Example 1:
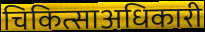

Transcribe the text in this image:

चिकित्साअधिकारी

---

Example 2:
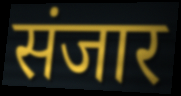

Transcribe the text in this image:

संजार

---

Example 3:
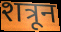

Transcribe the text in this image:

शत्रून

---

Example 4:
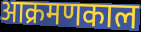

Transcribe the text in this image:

आक्रमणकाल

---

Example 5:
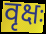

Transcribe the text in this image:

वृक्षः